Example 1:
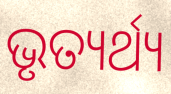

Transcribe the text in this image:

ଭୃତ୍ୟର୍ଥ୍ୟ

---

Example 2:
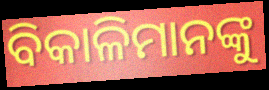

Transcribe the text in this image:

ବିକାଳିମାନଙ୍କୁ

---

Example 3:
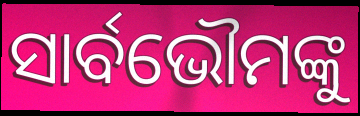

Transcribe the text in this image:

ସାର୍ବଭୌମଙ୍କୁ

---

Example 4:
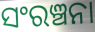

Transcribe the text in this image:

ସଂରଞ୍ଚନା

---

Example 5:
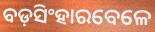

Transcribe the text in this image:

ବଡ଼ସିଂହାରବେଳେ